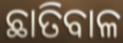
ଛାତିବାଳ